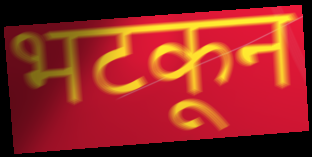
भटकून